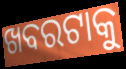
ଖବରଟାକୁ